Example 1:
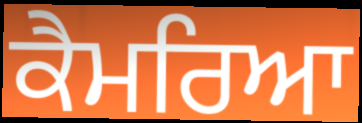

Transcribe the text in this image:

ਕੈਮਰਿਆ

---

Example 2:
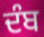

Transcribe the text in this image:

ਦੰਬ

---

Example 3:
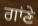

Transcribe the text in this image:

ਗਾਂਣੇ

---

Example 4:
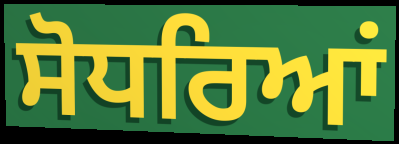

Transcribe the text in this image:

ਸੋਧਰਿਆਂ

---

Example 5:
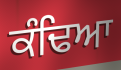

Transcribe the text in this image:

ਕੰਢਿਆ